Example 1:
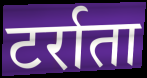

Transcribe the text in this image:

टर्राता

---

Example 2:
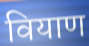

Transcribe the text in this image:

वियाण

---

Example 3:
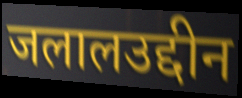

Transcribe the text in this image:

जलालउद्दीन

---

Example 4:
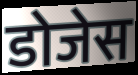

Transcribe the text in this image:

डोजेस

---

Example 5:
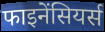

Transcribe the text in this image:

फाइनेंसियर्स